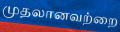
முதலானவற்றை